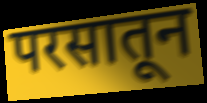
परसातून